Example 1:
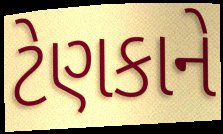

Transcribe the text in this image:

ટેણકાને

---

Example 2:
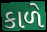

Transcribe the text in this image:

કાળે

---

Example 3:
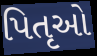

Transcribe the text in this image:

પિતૃઓ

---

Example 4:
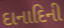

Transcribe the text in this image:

દાનાદિની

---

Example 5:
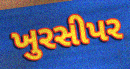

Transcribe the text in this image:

ખુરસીપર